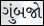
ગુંબજો